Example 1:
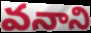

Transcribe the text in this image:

వనాని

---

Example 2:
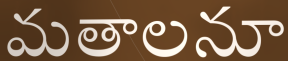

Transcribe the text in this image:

మతాలనూ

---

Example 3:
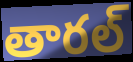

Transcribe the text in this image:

తారల్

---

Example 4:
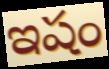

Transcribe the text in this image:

ఇషం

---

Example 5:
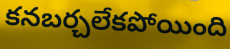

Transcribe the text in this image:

కనబర్చలేకపోయింది